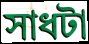
সাধটা